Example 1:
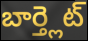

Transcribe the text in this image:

బార్త్లెట్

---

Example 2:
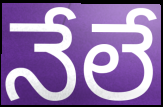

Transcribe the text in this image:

నేలే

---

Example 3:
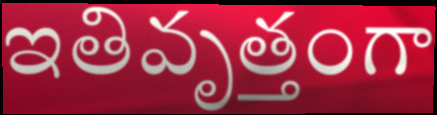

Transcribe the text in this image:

ఇతివృత్తంగా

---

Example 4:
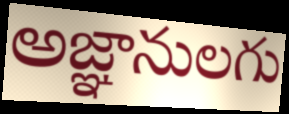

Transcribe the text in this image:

అజ్ఞానులగు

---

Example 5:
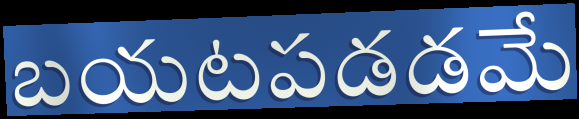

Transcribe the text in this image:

బయటపడడమే